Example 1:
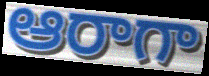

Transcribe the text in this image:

ఆరాగా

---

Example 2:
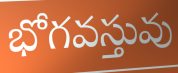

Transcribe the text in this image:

భోగవస్తువు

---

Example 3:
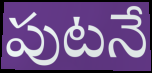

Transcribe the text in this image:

పుటనే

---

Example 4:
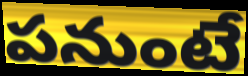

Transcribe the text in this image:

పనుంటే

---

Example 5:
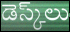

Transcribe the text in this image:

డెస్క్‌లు